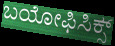
ಬಯೋಫಿಸಿಕ್ಸ್